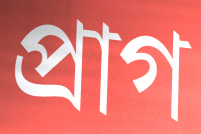
প্ৰাগ